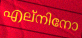
എല്നിനോ